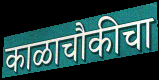
काळाचौकीचा